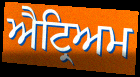
ਐਟ੍ਰਿਅਮ